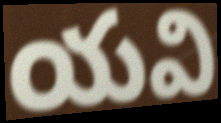
యవి